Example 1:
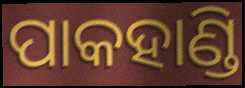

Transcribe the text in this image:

ପାକହାଣ୍ଡି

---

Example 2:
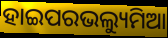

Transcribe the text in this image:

ହାଇପରଭଲ୍ୟୁମିଆ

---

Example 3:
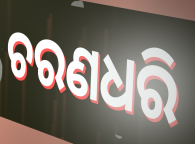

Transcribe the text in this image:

ଚରଣଧରି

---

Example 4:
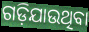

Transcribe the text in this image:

ଗଡ଼ିଯାଉଥିବା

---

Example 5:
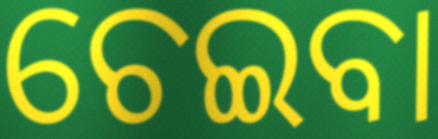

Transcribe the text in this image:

ଚେଇବା